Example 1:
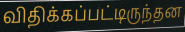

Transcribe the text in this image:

விதிக்கப்பட்டிருந்தன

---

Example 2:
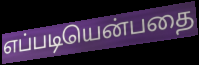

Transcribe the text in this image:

எப்படியென்பதை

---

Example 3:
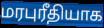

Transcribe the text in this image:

மரபுரீதியாக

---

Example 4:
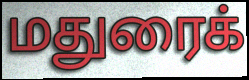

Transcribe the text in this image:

மதுரைக்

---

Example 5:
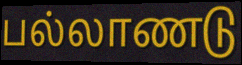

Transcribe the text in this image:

பல்லாணடு